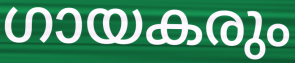
ഗായകരും